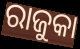
ରାଜୁକା